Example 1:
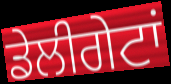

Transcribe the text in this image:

ਡੇਲੀਗੇਟਾਂ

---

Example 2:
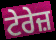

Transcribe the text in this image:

ਟੇਰੇਜ਼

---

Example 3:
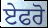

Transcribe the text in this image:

ਏਫਰੋ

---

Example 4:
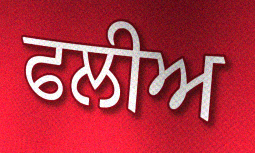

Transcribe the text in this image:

ਫਲੀਅ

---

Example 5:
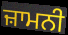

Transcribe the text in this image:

ਜ਼ਾਮਨੀ